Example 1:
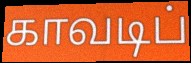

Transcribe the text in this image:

காவடிப்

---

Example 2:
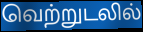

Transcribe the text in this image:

வெற்றுடலில்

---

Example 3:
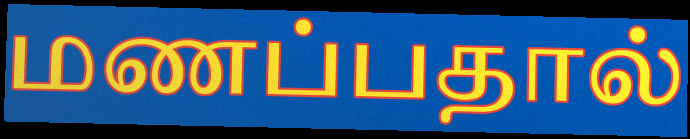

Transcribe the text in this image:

மணப்பதால்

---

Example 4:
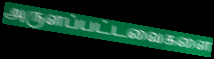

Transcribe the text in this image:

அருளப்பட்டவைகளை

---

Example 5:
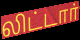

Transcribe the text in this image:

லிட்டார்